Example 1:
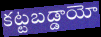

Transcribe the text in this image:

కట్టబడ్డాయో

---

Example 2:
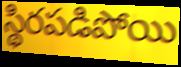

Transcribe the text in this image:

స్థిరపడిపోయి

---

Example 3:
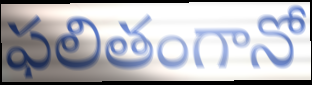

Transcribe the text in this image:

ఫలితంగానో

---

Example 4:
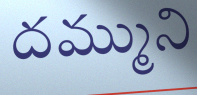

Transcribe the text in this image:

దమ్ముని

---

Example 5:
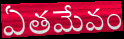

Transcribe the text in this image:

ఏతమేవం